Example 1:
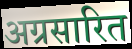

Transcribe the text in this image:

अग्रसारित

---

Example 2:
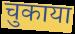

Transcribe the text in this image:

चुकाया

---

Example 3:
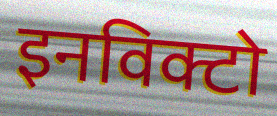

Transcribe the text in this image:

इनविक्टो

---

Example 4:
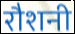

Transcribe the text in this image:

रौशनी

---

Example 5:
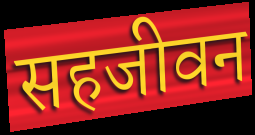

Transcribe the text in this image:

सहजीवन